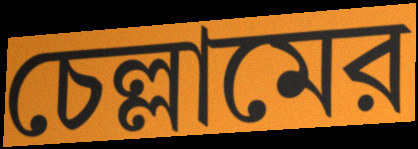
চেল্লামের